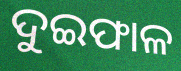
ଦୁଇଫାଳ